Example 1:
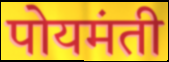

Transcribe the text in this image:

पोयमंती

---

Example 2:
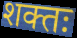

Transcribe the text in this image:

शक्तः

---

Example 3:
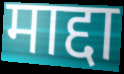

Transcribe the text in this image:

माद्दा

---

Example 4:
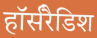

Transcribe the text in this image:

हॉर्सरैडिश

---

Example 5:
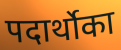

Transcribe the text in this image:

पदार्थोका